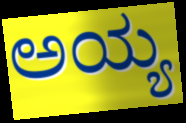
ಅಯ್ಯ